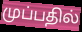
முப்பதில்